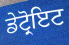
ਡੇਟ੍ਰੋਇਟ